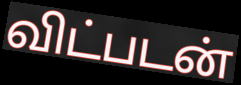
விட்படன்